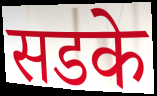
सडके